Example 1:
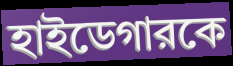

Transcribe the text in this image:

হাইডেগারকে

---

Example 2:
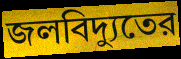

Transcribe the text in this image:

জলবিদ্যুতের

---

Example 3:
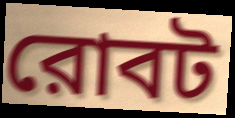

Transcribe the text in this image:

রোবট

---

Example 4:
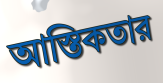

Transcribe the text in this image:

আস্তিকতার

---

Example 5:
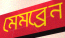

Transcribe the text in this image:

মেমব্রেন